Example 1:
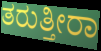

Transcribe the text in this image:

ತರುತ್ತೀರಾ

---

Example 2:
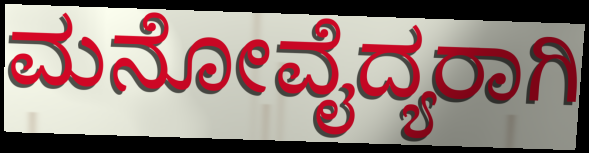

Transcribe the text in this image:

ಮನೋವೈದ್ಯರಾಗಿ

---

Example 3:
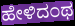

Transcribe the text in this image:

ಹೇಳಿದಂಥ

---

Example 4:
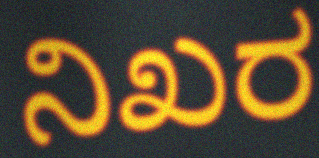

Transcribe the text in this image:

ನಿಖರ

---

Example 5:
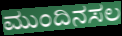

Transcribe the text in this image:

ಮುಂದಿನಸಲ